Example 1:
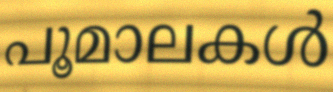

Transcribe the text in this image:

പൂമാലകൾ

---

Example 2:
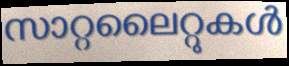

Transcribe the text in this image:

സാറ്റലൈറ്റുകൾ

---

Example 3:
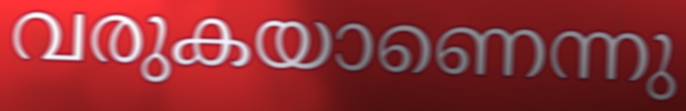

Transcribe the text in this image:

വരുകയാണെന്നു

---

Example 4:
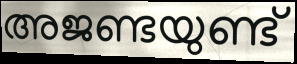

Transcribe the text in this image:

അജണ്ടയുണ്ട്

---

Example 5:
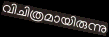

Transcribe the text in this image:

വിചിത്രമായിരുന്നു